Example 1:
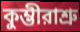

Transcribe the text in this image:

কুম্ভীরাশ্রু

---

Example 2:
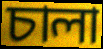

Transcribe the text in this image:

চালা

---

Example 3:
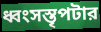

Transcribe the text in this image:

ধ্বংসস্তৃপটার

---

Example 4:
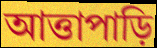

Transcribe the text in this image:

আত্তাপাড়ি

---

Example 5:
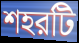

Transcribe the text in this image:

শহরটি